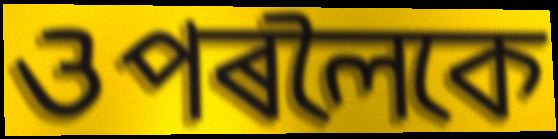
ওপৰলৈকে